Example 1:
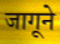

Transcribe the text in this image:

जागूने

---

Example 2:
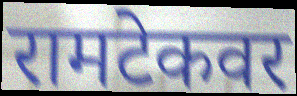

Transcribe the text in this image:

रामटेकवर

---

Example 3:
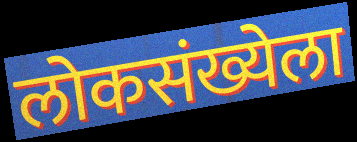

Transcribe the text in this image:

लोकसंख्येला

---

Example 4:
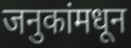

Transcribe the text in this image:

जनुकांमधून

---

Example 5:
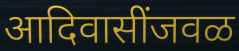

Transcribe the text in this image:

आदिवासींजवळ